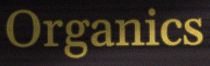
Organics